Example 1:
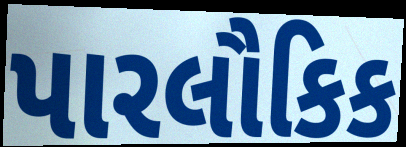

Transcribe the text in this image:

પારલૌકિક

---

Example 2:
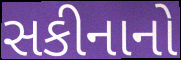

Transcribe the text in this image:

સકીનાનો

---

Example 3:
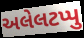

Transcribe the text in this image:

અલેલટપ્પુ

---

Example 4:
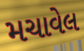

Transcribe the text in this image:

મચાવેલ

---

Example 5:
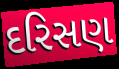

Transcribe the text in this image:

દરિસણ